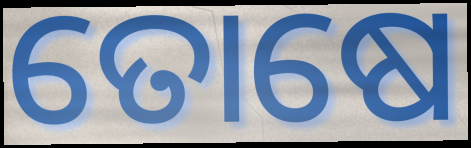
ତୋଷେ